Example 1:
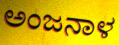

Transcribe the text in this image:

ಅಂಜನಾಳ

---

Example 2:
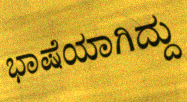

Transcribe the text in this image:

ಭಾಷೆಯಾಗಿದ್ದು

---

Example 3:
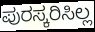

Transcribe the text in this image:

ಪುರಸ್ಕರಿಸಿಲ್ಲ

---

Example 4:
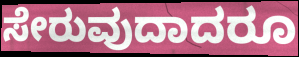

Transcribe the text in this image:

ಸೇರುವುದಾದರೂ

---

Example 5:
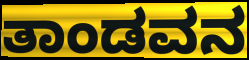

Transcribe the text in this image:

ತಾಂಡವನ